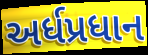
અર્ધપ્રધાન